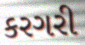
કરગરી